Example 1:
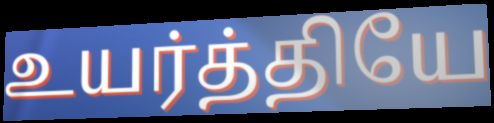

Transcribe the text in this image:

உயர்த்தியே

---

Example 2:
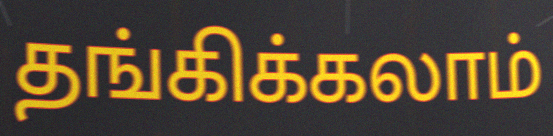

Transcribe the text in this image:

தங்கிக்கலாம்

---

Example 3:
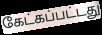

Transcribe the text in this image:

கேட்கப்பட்டது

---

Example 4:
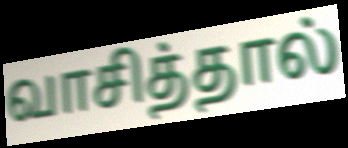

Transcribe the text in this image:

வாசித்தால்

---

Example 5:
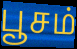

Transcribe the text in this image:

பூசம்